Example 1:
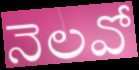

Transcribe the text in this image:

నెలవో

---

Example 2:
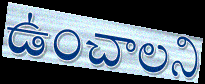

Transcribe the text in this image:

ఉంచాలని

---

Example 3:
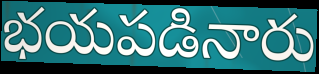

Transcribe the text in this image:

భయపడినారు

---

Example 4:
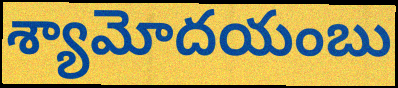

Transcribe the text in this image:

శ్యామోదయంబు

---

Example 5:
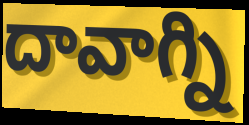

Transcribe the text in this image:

దావాగ్ని